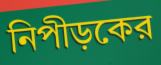
নিপীড়কের